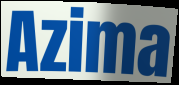
Azima